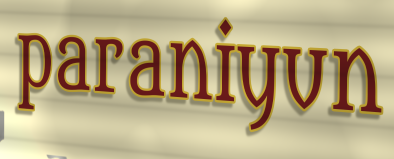
paraniyun